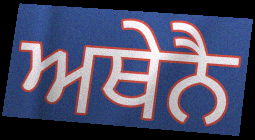
ਅਥੇਨੈ